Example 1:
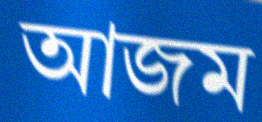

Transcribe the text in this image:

আজম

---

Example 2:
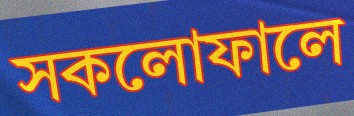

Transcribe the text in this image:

সকলোফালে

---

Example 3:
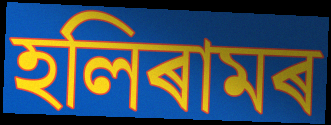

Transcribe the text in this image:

হলিৰামৰ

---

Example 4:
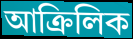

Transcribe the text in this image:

আক্ৰিলিক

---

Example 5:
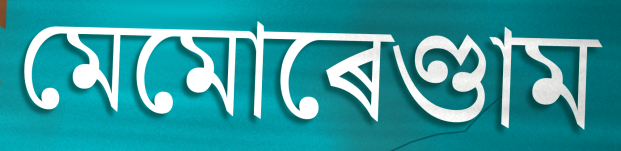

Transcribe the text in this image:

মেমোৰেণ্ডাম